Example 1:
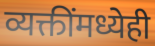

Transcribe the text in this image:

व्यक्तींमध्येही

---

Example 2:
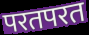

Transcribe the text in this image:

परतपरत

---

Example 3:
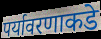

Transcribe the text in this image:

पर्यावरणाकडे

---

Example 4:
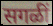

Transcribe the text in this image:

सगळीं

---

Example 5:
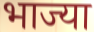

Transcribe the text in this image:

भाज्या